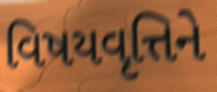
વિષયવૃત્તિને